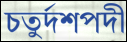
চতুর্দশপদী